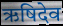
ऋषिदेव